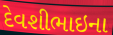
દેવશીભાઇના